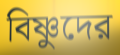
বিষ্ণুদের